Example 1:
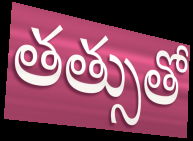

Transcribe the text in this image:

తత్సుతో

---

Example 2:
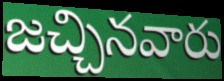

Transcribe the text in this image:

జచ్చినవారు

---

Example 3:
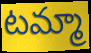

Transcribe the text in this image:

టమ్మా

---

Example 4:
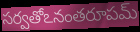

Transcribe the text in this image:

సర్వతోఽనంతరూపమ్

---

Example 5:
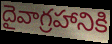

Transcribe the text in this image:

దైవాగ్రహానికి